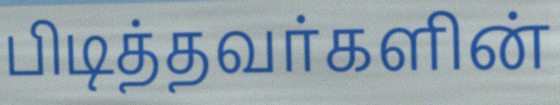
பிடித்தவர்களின்